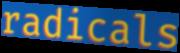
radicals